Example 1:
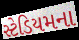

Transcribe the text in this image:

સ્ટેડિયમના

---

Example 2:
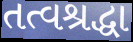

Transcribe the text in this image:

તત્વશ્રદ્ધા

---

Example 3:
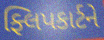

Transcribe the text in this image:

ફ્લિપકાર્ટને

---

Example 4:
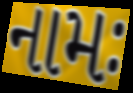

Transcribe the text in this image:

નામઃ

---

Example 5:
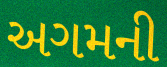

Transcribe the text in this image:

અગમની